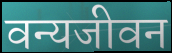
वन्यजीवन